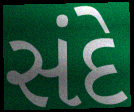
સંદે